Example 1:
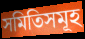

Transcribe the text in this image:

সমিতিসমূহ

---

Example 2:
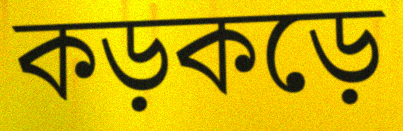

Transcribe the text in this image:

কড়কড়ে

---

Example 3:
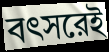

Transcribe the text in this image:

বৎসরেই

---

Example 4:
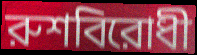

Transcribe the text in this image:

রুশবিরোধী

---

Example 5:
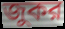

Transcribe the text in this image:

জুকর